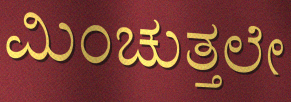
ಮಿಂಚುತ್ತಲೇ